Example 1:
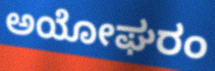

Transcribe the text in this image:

ಅಯೋಘರಂ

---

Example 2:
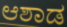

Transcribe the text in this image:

ಆಶಾಡ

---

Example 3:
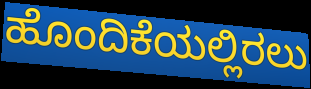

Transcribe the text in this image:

ಹೊಂದಿಕೆಯಲ್ಲಿರಲು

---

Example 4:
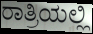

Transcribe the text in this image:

ರಾತ್ರಿಯಲ್ಲಿ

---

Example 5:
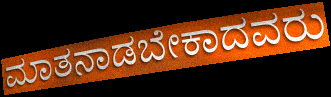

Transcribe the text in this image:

ಮಾತನಾಡಬೇಕಾದವರು